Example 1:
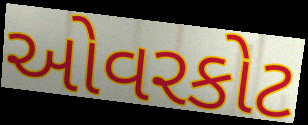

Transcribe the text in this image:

ઓવરકોટ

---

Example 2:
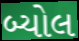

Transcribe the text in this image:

બ્યોલ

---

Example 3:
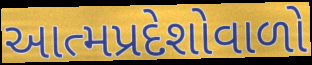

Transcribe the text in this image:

આત્મપ્રદેશોવાળો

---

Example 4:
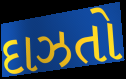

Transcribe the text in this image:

દાઝતો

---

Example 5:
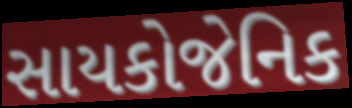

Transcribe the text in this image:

સાયકોજેનિક